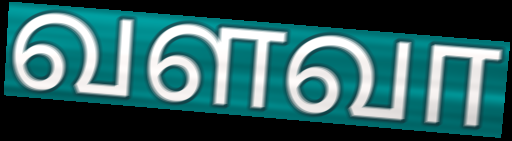
வளவா